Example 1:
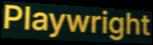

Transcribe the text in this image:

Playwright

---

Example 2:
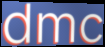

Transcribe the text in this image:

dmc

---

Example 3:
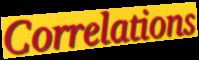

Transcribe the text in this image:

Correlations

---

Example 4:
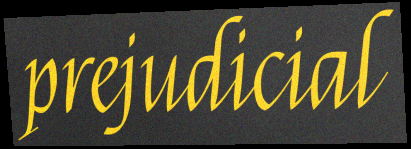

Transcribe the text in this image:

prejudicial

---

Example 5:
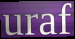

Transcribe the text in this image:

uraf